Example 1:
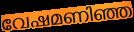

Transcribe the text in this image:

വേഷമണിഞ്ഞ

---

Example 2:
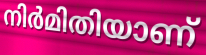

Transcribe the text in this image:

നിർമിതിയാണ്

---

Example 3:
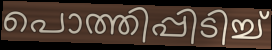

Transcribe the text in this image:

പൊത്തിപ്പിടിച്ച്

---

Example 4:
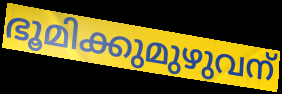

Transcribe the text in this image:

ഭൂമിക്കുമുഴുവന്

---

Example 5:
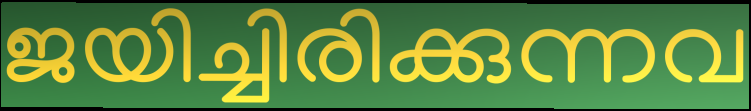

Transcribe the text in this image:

ജയിച്ചിരിക്കുന്നവ